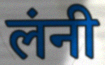
लंनी